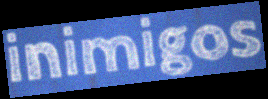
inimigos